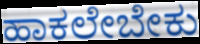
ಹಾಕಲೇಬೇಕು